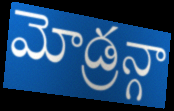
మోడ్రన్గా